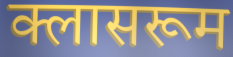
क्लासरूम